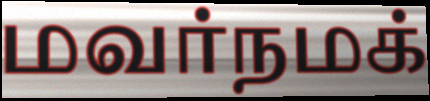
மவர்நமக்